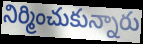
నిర్మించుకున్నారు